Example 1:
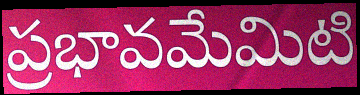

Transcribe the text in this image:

ప్రభావమేమిటి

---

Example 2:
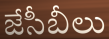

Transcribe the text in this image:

జేసీబీలు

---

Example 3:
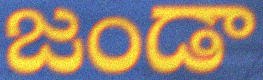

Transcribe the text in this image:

జండా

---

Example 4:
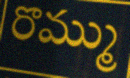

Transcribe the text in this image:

రొమ్ము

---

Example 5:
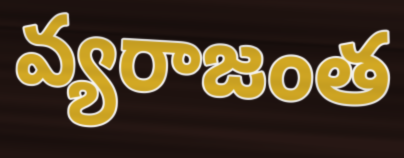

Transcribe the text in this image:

వ్యరాజంత